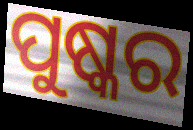
ପୁଷ୍କର